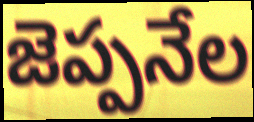
జెప్పనేల